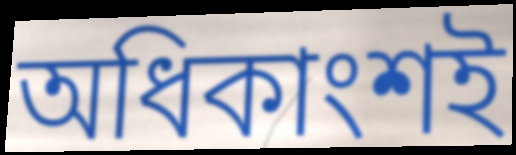
অধিকাংশই